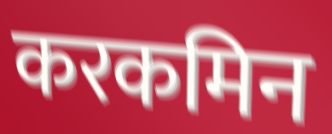
करकमिन